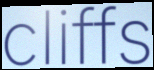
cliffs